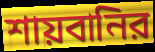
শায়বানির